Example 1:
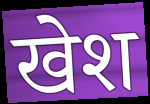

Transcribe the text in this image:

खेश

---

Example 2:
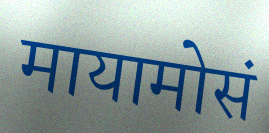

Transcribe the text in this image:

मायामोसं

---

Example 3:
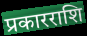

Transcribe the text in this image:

प्रकारराशि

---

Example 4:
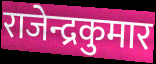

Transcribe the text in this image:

राजेन्द्रकुमार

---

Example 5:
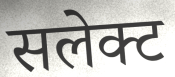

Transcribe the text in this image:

सलेक्ट